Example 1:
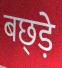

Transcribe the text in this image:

बछ्ड़े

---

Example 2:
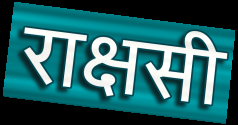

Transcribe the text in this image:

राक्षसी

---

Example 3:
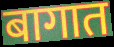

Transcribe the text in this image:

बागात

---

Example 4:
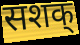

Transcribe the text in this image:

सशक्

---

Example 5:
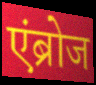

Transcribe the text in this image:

एंब्रोज